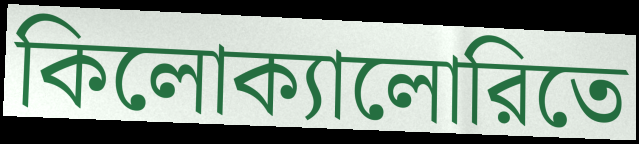
কিলোক্যালোরিতে